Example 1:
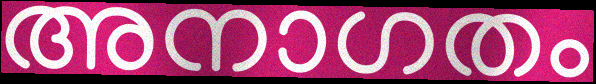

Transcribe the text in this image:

അനാഗതം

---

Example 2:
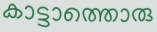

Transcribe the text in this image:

കാട്ടാത്തൊരു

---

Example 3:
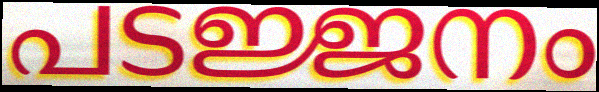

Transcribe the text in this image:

പടജ്ജനം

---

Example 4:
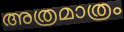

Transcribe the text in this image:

അത്രമാത്രം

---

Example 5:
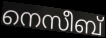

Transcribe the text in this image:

നെസീബ്